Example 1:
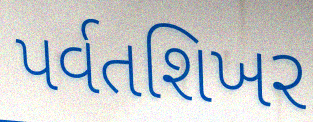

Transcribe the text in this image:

પર્વતશિખર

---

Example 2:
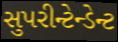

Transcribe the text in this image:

સુપરીન્ટેન્ડેન્ટ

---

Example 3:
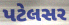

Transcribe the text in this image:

પટેલસર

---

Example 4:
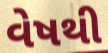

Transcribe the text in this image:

વેષથી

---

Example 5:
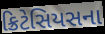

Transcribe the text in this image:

ક્રિટેસિયસના